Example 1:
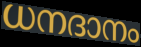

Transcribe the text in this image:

ധനദാനം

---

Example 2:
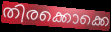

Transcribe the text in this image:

തിരക്കൊക്കെ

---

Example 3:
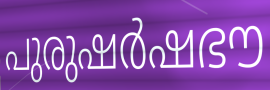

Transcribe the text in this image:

പുരുഷർഷഭൗ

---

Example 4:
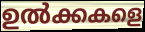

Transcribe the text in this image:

ഉൽക്കകളെ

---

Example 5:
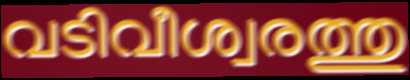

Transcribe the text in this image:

വടിവീശ്വരത്തു